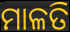
ମାଳତି